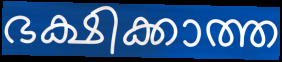
ഭക്ഷിക്കാത്ത